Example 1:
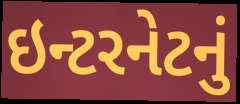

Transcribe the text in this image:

ઇન્ટરનેટનું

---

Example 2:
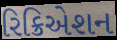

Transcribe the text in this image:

રિક્રિએશન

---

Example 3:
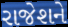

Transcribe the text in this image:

રાજેશને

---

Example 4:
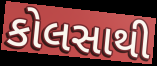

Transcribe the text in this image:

કોલસાથી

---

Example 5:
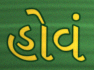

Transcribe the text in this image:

હોવં